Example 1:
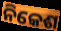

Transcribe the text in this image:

ନିକେଶ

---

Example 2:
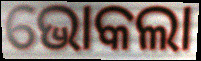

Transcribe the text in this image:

ଭୋକଲା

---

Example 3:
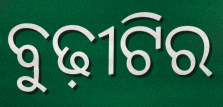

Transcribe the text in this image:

ବୁଢ଼ୀଟିର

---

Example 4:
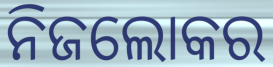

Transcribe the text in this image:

ନିଜଲୋକର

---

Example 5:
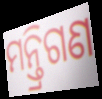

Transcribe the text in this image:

ମନ୍ତ୍ରିଗଣ